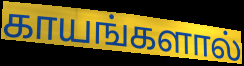
காயங்களால்